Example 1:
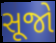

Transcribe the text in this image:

સૂજો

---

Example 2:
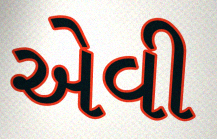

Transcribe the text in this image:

એવી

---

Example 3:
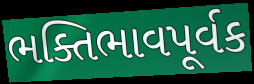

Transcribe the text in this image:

ભક્તિભાવપૂર્વક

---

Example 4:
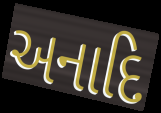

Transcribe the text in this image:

અનાદિ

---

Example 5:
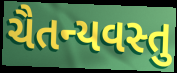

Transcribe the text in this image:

ચૈતન્યવસ્તુ